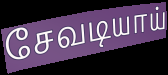
சேவடியாய்